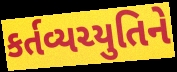
કર્તવ્યચ્યુતિને